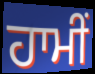
ਹਾਮੀਂ